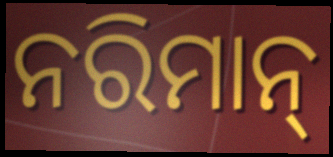
ନରିମାନ୍